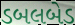
ડબલબેડ